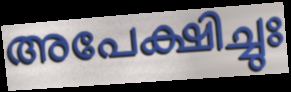
അപേക്ഷിച്ചുഃ